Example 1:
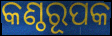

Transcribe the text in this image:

କଣ୍ଠରୂପକ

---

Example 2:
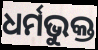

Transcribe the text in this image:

ଧର୍ମଭୁକ୍ତ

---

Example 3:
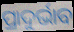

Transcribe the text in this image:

ପ୍ରାଦୁର୍ଭାବ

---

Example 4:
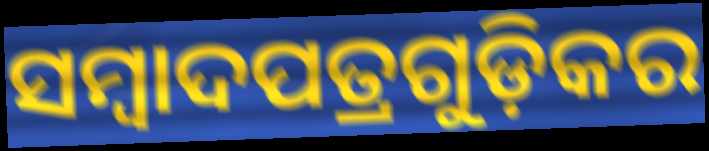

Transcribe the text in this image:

ସମ୍ୱାଦପତ୍ରଗୁଡ଼ିକର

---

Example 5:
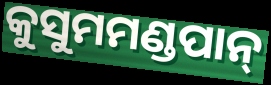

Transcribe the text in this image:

କୁସୁମମଣ୍ଡପାନ୍